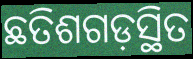
ଛତିଶଗଡ଼ସ୍ଥିତ